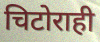
चिटोराही